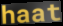
haat